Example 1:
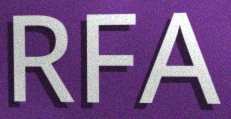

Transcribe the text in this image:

RFA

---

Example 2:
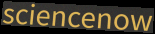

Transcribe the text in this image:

sciencenow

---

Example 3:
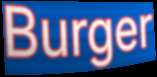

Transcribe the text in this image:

Burger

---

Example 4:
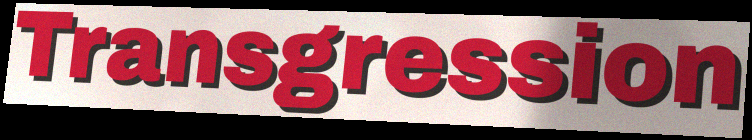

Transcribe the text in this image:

Transgression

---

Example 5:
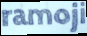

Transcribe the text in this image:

ramoji